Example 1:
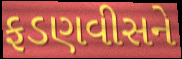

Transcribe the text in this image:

ફડણવીસને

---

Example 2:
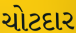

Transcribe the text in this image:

ચોટદાર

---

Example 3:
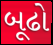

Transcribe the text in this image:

બૂઢો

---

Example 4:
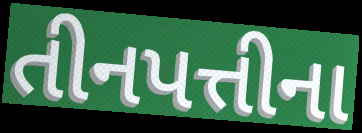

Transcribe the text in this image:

તીનપત્તીના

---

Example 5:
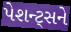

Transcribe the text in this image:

પેશન્ટ્સને